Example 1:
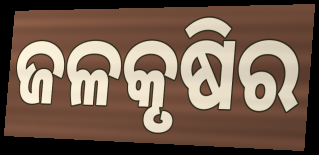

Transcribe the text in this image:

ଜଳକୃଷିର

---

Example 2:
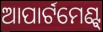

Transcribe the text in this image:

ଆପାର୍ଟମେଣ୍ଟ୍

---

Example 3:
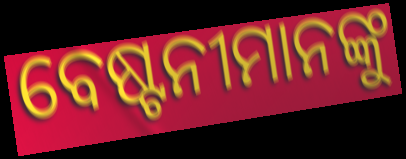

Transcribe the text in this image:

ବେଷ୍ଟନୀମାନଙ୍କୁ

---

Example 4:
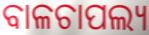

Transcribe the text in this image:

ବାଳଚାପଲ୍ୟ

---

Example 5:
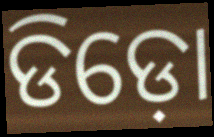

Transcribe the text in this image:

ଡିଡ଼ୋ